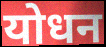
योधन